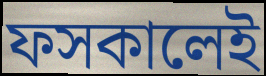
ফসকালেই